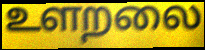
உளறலை